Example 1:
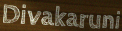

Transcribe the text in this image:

Divakaruni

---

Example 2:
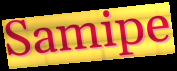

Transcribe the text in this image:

Samipe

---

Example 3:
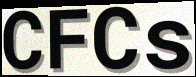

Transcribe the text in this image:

CFCs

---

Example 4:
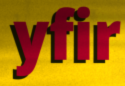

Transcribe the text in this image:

yfir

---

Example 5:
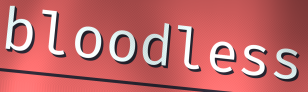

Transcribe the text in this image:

bloodless